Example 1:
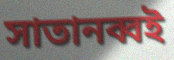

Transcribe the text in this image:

সাতানব্বই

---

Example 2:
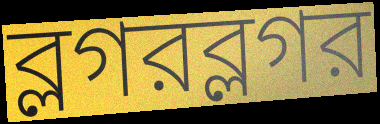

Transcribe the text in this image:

ব্লগরব্লগর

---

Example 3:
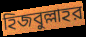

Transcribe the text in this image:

হিজবুল্লাহর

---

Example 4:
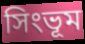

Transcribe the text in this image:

সিংভূম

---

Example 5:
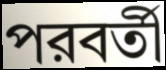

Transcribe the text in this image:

পরবর্তী